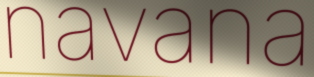
navana